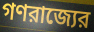
গণরাজ্যের